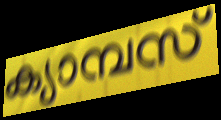
ക്യാമ്പസ്